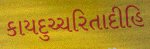
કાયદુચ્ચરિતાદીહિ